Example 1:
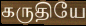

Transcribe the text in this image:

கருதியே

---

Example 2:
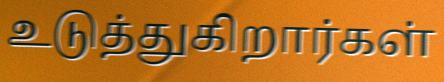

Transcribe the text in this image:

உடுத்துகிறார்கள்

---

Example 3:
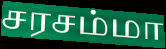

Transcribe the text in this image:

சரசம்மா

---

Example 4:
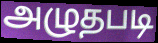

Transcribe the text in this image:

அழுதபடி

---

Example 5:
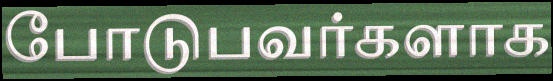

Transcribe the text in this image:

போடுபவர்களாக